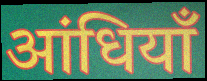
आंधियाँ